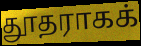
தூதராகக்